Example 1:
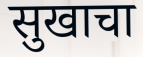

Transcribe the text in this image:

सुखाचा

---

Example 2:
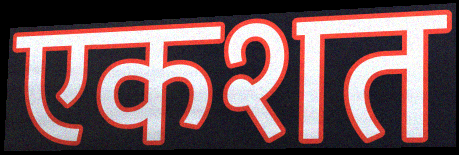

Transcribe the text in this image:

एकशत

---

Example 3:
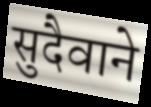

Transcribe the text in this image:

सुदैवाने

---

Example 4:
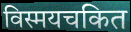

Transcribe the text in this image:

विस्मयचकित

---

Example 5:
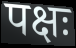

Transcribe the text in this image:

पक्षः